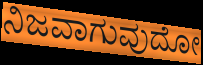
ನಿಜವಾಗುವುದೋ